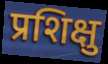
प्रशिक्षु